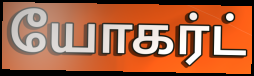
யோகர்ட்